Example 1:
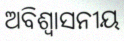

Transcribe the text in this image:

ଅବିଶ୍ୱାସନୀୟ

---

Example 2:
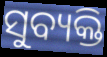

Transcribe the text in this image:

ସୁବ୍ୟକ୍ତି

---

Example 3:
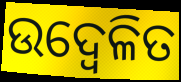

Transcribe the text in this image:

ଉଦ୍ବେଳିତ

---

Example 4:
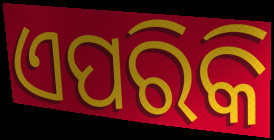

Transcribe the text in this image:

ଏପରିକି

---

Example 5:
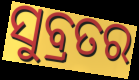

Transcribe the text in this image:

ସୁବ୍ରତର